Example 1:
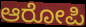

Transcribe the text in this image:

ಆರೋಪಿ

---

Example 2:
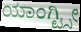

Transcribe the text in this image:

ಯಾಂಗ್ಟ್ಸೀ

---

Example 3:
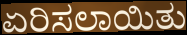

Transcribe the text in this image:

ಏರಿಸಲಾಯಿತು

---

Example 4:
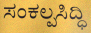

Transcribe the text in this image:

ಸಂಕಲ್ಪಸಿದ್ಧಿ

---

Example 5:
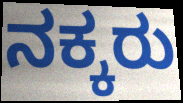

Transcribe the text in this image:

ನಕ್ಕರು